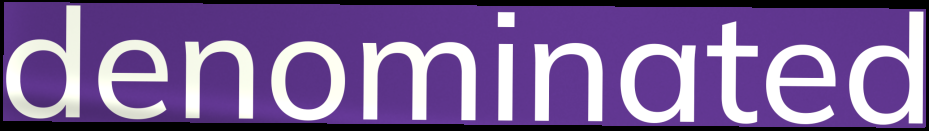
denominated